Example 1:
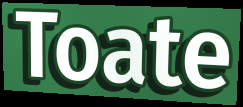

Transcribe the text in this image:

Toate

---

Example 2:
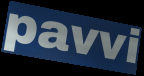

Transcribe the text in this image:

pavvi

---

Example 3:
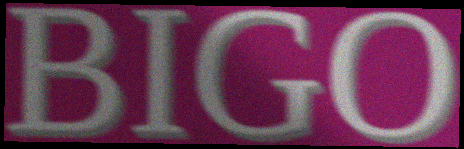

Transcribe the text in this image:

BIGO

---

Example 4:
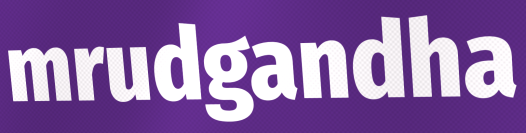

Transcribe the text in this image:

mrudgandha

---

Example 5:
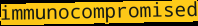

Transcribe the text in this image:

immunocompromised